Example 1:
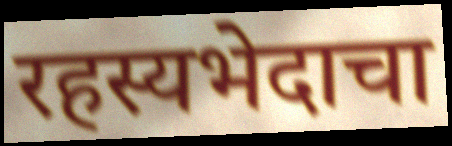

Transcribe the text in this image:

रहस्यभेदाचा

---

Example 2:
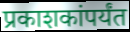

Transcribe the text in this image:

प्रकाशकांपर्यंत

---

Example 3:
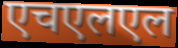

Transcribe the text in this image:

एचएलएल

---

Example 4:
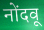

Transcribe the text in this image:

नोंदवू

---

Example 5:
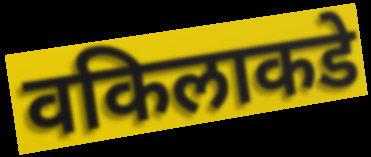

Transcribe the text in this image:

वकिलाकडे